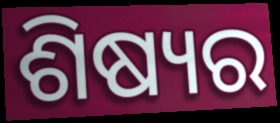
ଶିଷ୍ୟର